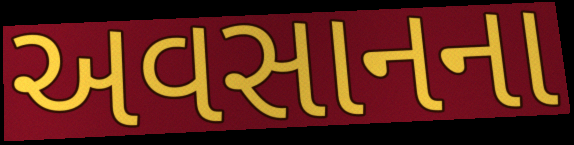
અવસાનના